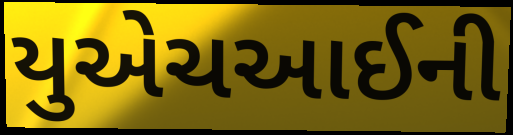
યુએચઆઈની